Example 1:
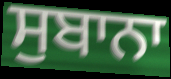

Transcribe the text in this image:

ਸੁਬਾਨਾ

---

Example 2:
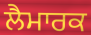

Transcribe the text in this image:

ਲੈਮਾਰਕ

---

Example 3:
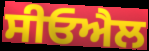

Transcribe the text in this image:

ਸੀਓਐਲ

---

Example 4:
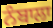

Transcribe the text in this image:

ਨੰਬਾਲਾ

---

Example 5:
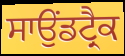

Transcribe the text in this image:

ਸਾਉਂਡਟ੍ਰੈਕ